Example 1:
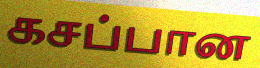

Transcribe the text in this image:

கசப்பான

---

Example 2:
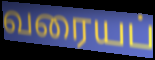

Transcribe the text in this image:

வரையப்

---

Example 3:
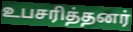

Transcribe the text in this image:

உபசரித்தனர்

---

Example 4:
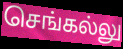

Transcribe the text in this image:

செங்கல்லு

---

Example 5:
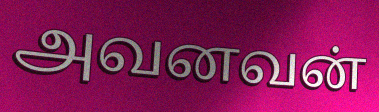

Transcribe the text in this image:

அவனவன்